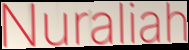
Nuraliah